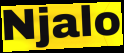
Njalo